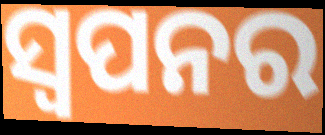
ସ୍ଵପନର